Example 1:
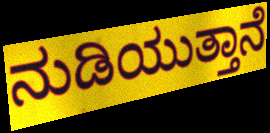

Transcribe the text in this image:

ನುಡಿಯುತ್ತಾನೆ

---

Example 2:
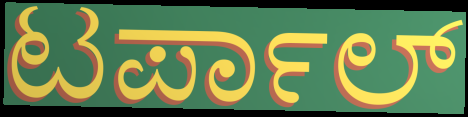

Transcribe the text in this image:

ಟರ್ಪಾಲ್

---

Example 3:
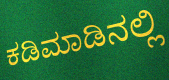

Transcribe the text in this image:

ಕಡಿಮಾಡಿನಲ್ಲಿ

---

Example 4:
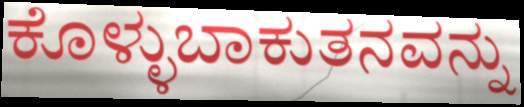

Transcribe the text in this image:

ಕೊಳ್ಳುಬಾಕುತನವನ್ನು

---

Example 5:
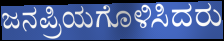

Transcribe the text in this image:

ಜನಪ್ರಿಯಗೊಳಿಸಿದರು